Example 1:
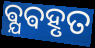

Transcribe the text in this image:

ଵ୍ଯଵହୃତ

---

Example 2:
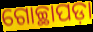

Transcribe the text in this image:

ଗୋଚ୍ଛାପଡ଼ା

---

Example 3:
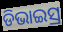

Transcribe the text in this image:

ଡିଭାଇସ୍ର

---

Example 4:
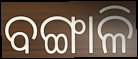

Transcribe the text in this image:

ବଙ୍ଗାଳି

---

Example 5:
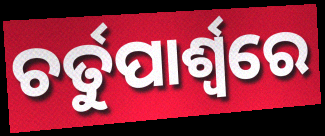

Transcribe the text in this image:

ଚର୍ତୁପାର୍ଶ୍ବରେ